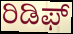
ರಿಡಿಫ್